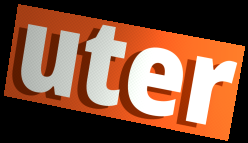
uter